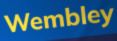
Wembley